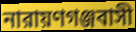
নারায়ণগঞ্জবাসী